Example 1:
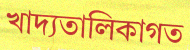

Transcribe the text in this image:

খাদ্যতালিকাগত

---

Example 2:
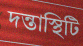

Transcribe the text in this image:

দন্তাস্থিটি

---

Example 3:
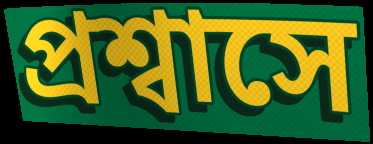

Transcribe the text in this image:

প্রশ্বাসে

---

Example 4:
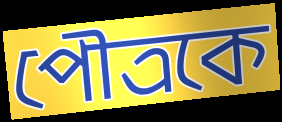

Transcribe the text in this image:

পৌত্রকে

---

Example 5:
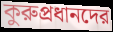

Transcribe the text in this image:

কুরুপ্রধানদের